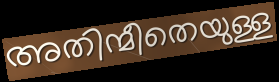
അതിന്മീതെയുള്ള